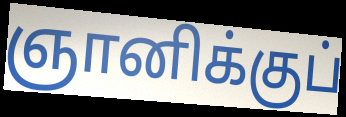
ஞானிக்குப்